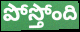
పోస్తోంది